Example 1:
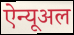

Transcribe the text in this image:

ऐन्यूअल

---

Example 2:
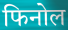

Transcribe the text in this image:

फिनोल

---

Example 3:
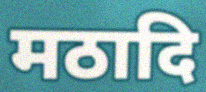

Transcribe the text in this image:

मठादि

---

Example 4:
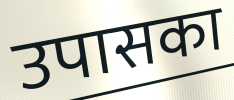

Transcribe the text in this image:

उपासका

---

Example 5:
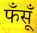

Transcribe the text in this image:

फँसूँ